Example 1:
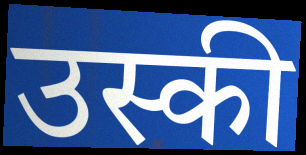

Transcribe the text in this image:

उस्‍की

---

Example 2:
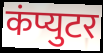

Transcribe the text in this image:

कंप्युटर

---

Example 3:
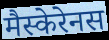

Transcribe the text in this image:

मैस्केरेनस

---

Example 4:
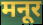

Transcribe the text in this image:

मनूर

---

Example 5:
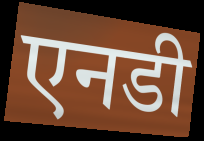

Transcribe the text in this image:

एनडी